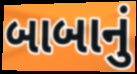
બાબાનું